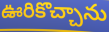
ఊరికొచ్చాను